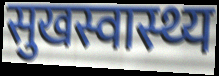
सुखस्वास्थ्य